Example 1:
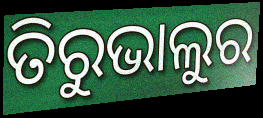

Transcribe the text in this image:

ତିରୁଭାଲୁର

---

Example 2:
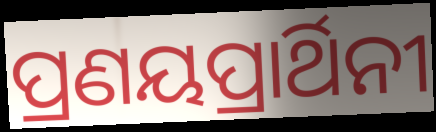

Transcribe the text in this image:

ପ୍ରଣୟପ୍ରାର୍ଥିନୀ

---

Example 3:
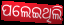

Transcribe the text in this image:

ପଲେଇଥିଲି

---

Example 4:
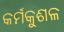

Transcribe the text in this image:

କର୍ମକୁଶଳ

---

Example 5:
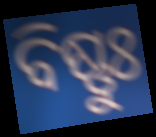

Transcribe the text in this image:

ବିଷ୍ଣୁଃ